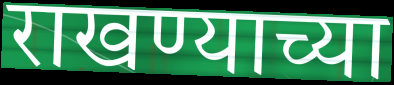
राखण्याच्या